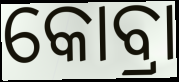
କୋବ୍ରା